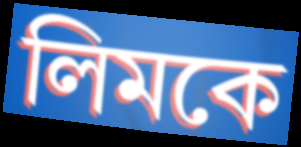
লিমকে